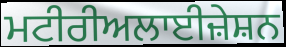
ਮਟੀਰੀਅਲਾਈਜ਼ੇਸ਼ਨ